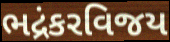
ભદ્રંકરવિજય